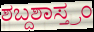
ಶಬ್ದಶಾಸ್ತ್ರಂ